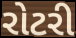
રોટરી